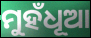
ମୁହଁଧୂଆ